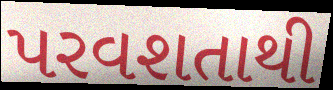
પરવશતાથી